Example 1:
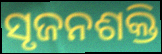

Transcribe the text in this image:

ସୃଜନଶକ୍ତି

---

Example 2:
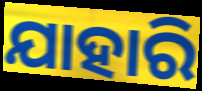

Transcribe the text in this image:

ଯାହାରି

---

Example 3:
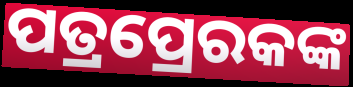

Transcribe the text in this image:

ପତ୍ରପ୍ରେରକଙ୍କ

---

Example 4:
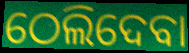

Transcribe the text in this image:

ଠେଲିଦେବା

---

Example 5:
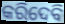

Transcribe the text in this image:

କରିଦେବି